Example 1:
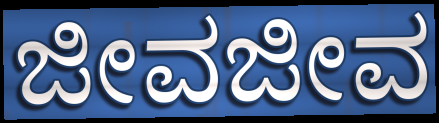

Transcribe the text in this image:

ಜೀವಜೀವ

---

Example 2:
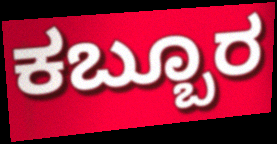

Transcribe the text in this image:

ಕಬ್ಬೂರ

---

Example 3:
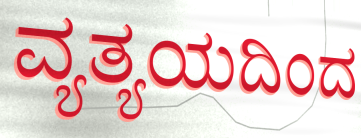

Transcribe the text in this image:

ವ್ಯತ್ಯಯದಿಂದ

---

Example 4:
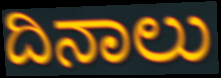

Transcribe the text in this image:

ದಿನಾಲು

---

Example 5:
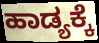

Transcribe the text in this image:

ಹಾಡ್ಯಕ್ಕೆ